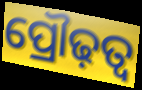
ପ୍ରୌଢ଼ତ୍ୱ